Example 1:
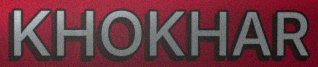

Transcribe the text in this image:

KHOKHAR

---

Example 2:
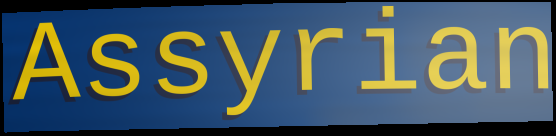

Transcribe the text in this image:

Assyrian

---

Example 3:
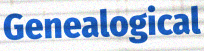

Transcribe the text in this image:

Genealogical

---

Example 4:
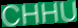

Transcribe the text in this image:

CHHU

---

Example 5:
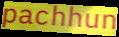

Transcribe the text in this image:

pachhun